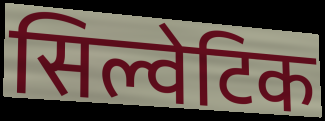
सिल्वेटिक